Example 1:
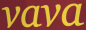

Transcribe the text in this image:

vava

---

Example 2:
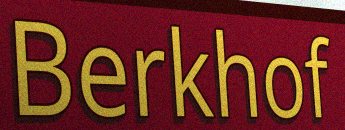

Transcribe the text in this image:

Berkhof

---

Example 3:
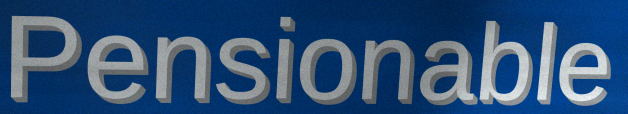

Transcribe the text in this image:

Pensionable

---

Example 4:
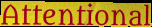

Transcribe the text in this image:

Attentional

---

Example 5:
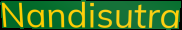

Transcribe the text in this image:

Nandisutra